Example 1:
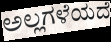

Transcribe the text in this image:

ಅಲ್ಲಗಳೆಯದೆ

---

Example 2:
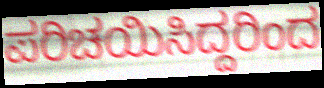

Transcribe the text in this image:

ಪರಿಚಯಿಸಿದ್ದರಿಂದ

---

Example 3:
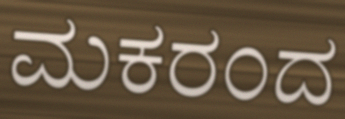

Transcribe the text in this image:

ಮಕರಂದ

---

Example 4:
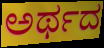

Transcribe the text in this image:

ಅರ್ಥದ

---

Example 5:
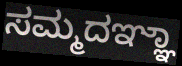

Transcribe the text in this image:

ಸಮ್ಮದಞ್ಞಾ